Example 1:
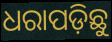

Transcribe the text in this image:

ଧରାପଡ଼ିଛୁ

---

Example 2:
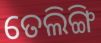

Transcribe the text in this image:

ତେଲିଙ୍ଗି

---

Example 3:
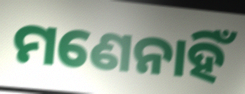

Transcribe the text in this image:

ମଣେନାହିଁ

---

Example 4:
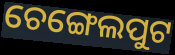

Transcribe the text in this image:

ଚେଙ୍ଗେଲପୁଟ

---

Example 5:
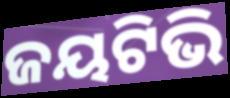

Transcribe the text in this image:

ଜୟଟିଭି